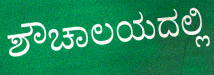
ಶೌಚಾಲಯದಲ್ಲಿ